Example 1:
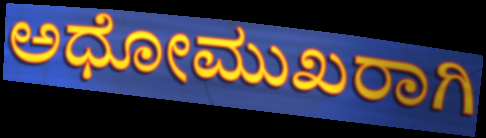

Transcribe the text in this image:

ಅಧೋಮುಖರಾಗಿ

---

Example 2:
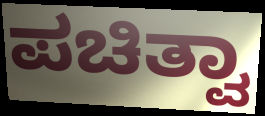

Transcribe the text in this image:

ಪಚಿತ್ವಾ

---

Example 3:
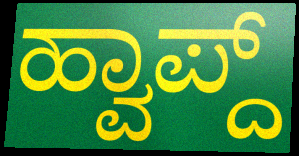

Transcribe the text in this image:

ಹ್ವಾಪ್ದ್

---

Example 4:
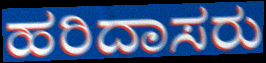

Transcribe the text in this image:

ಹರಿದಾಸರು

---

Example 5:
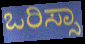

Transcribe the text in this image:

ಒರಿಸ್ಸಾ